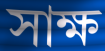
সাক্ষ